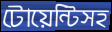
টোয়েন্টিসহ